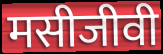
मसीजीवी